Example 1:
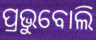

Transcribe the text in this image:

ପ୍ରଭୁବୋଲି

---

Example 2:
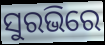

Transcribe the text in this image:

ସୁରଭିରେ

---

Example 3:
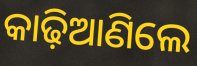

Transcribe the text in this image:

କାଢ଼ିଆଣିଲେ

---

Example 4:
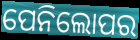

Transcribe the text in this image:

ପେନିଲୋପର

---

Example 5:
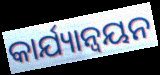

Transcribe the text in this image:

କାର୍ଯ୍ୟାନ୍ୱୟନ